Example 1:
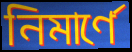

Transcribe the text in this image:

নিমার্ণে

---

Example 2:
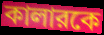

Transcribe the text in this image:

কালারকে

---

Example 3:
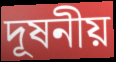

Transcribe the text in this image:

দূষনীয়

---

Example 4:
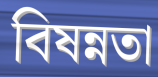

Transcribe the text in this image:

বিষন্নতা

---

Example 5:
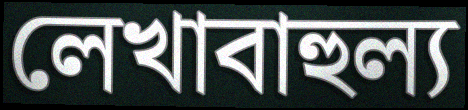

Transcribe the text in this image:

লেখাবাহুল্য